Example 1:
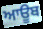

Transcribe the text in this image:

ਆਊਬ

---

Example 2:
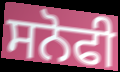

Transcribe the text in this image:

ਸਨੋਫੀ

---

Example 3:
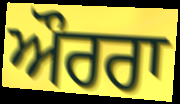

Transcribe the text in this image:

ਔਰਰਾ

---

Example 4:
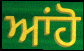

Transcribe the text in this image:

ਆਂਹੋ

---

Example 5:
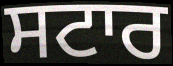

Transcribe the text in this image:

ਸਟਾਰ